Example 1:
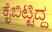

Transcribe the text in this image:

ಕೈಬಿಟ್ಟಿದ್ದ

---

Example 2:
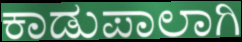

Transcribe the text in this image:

ಕಾಡುಪಾಲಾಗಿ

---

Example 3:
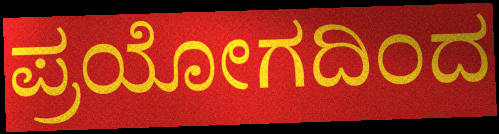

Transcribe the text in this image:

ಪ್ರಯೋಗದಿಂದ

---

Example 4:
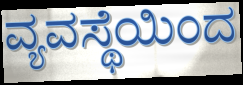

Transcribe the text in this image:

ವ್ಯವಸ್ಥೆಯಿಂದ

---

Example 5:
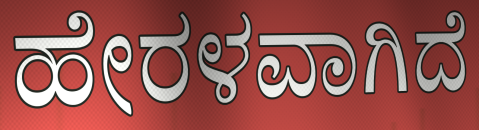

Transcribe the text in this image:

ಹೇರಳವಾಗಿದೆ